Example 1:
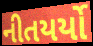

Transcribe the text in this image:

નીતયર્યો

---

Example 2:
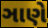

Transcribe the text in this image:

ઞાણે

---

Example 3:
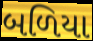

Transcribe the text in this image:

બળિયા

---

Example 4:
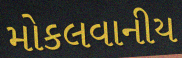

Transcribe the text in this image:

મોકલવાનીય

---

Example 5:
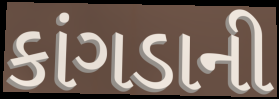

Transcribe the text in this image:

કાંગડાની